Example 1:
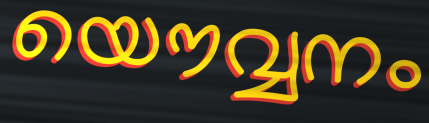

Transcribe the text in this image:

യൌവ്വനം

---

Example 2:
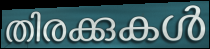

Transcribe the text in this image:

തിരക്കുകൾ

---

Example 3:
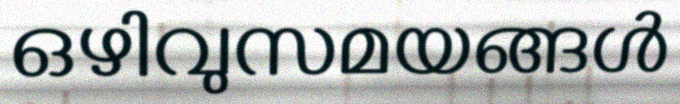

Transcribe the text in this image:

ഒഴിവുസമയങ്ങൾ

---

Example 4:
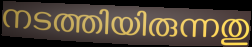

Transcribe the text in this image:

നടത്തിയിരുന്നതു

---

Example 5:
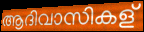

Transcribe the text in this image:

ആദിവാസികള്